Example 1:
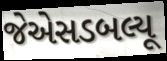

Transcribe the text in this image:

જેએસડબલ્યૂ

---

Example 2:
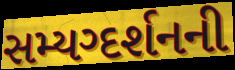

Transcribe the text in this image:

સમ્યગ્દર્શનની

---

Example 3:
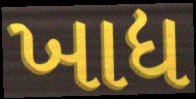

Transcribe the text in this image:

ખાદ્ય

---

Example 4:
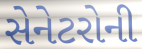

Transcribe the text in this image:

સેનેટરોની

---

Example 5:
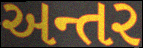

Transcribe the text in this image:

અન્તર